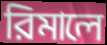
রিমালে